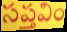
సప్తవిం